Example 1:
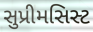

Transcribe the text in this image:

સુપ્રીમસિસ્ટ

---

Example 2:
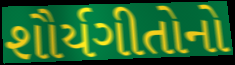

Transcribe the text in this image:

શૌર્યગીતોનો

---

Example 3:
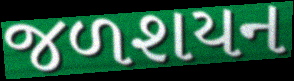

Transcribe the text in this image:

જળશયન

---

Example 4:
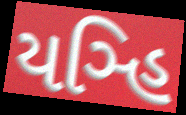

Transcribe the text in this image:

યઞ્હિ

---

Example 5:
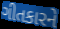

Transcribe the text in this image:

ગીતકારને